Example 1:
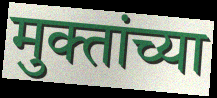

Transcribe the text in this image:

मुक्तांच्या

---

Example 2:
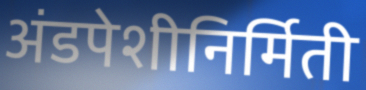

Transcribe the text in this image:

अंडपेशीनिर्मिती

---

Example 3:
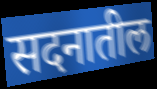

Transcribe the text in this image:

सदनातील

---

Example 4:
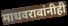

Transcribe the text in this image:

माधवरावांनीही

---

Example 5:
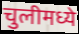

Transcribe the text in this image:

चुलीमध्ये